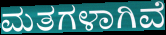
ಮತಗಳಾಗಿವೆ